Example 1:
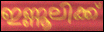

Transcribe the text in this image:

ഇണ്ണൂലിക്ക്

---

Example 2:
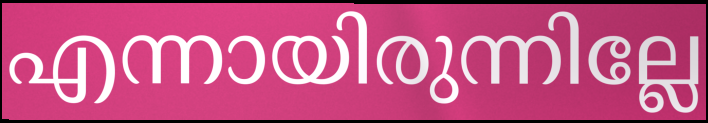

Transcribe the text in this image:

എന്നായിരുന്നില്ലേ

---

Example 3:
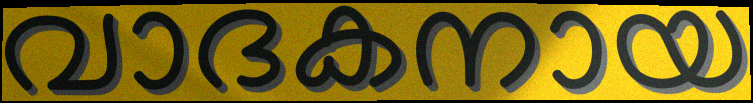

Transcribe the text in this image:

വാദകനായ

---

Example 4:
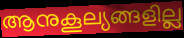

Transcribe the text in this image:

ആനുകൂല്യങ്ങളില്ല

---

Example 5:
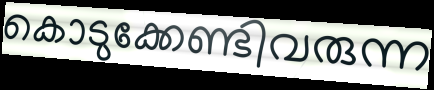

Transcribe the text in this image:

കൊടുക്കേണ്ടിവരുന്ന